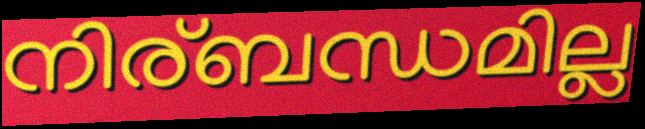
നിര്ബന്ധമില്ല